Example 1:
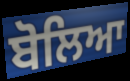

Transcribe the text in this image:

ਬੋਲਿਆ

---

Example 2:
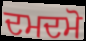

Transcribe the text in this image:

ਦਮਦਮੋ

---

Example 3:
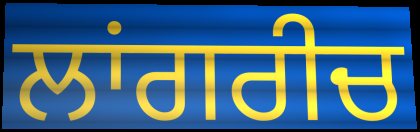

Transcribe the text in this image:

ਲਾਂਗਰੀਚ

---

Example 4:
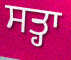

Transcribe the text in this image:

ਸਤ੍ਹਾ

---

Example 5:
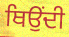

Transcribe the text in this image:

ਥਿਉਂਦੀ